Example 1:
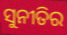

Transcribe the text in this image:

ସୁନୀତିର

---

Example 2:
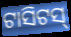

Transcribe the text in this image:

ଟାସିଟସ୍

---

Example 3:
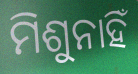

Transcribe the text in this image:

ମିଶୁନାହିଁ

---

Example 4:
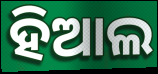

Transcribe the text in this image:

ହିଆଲ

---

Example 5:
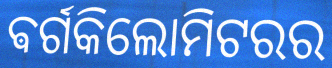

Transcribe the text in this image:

ଵର୍ଗକିଲୋମିଟରର